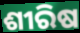
ଶୀରିଷ